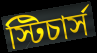
স্টিচার্স